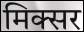
मिक्‍सर